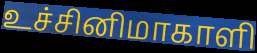
உச்சினிமாகாளி